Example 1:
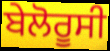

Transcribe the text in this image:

ਬੇਲੋਰੂਸੀ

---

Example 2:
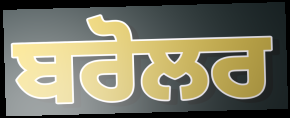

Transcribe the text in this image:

ਬਰੋਲਰ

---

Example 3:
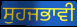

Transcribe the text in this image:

ਸੁਹਜਭਾਵੀ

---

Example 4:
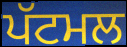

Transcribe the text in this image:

ਪੱਟਮਲ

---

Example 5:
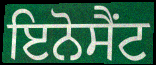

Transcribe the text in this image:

ਇਨੋਸੈਂਟ